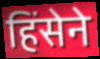
हिंसेने